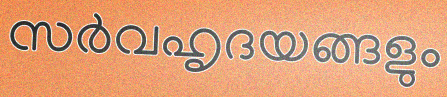
സർവഹൃദയങ്ങളും